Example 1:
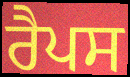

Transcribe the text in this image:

ਰੈਪਸ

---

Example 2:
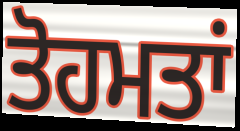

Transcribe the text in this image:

ਤੋਹਮਤਾਂ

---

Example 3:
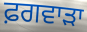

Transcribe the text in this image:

ਫ਼ਗਵਾੜਾ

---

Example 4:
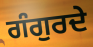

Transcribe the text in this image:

ਗੰਗੁਰਦੇ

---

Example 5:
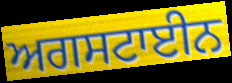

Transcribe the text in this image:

ਅਗਸਟਾਈਨ